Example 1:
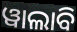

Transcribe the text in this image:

ୱାଲାବି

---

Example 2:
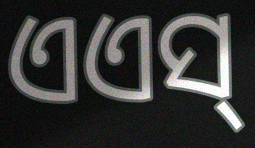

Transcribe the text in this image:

ଏଏସ୍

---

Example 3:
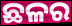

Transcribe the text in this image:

ଛଳର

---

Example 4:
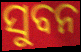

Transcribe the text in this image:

ସୁବନ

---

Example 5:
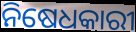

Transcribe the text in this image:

ନିଷେଧକାରୀ